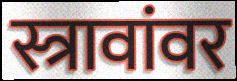
स्त्रावांवर